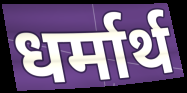
धर्मार्थ